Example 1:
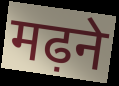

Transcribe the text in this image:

मढ़ने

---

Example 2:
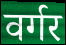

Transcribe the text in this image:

वर्गर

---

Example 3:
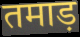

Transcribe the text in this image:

तमाड़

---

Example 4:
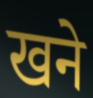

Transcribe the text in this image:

खने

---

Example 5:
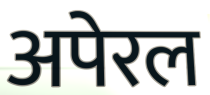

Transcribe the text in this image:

अपेरल